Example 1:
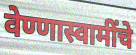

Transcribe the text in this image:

वेण्णास्वामींचे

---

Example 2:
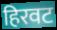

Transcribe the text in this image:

हिरवट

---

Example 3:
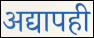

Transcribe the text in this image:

अद्यापही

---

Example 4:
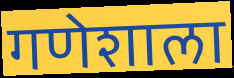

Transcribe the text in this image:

गणेशाला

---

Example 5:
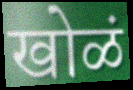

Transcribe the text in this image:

खोळं